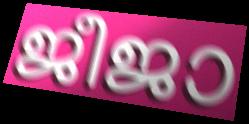
ജീജാ